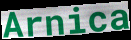
Arnica